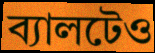
ব্যালটেও